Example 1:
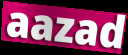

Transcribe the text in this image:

aazad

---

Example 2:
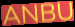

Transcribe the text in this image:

ANBU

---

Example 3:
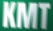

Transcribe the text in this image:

KMT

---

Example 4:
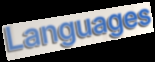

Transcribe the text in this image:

Languages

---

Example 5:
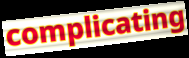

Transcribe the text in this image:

complicating